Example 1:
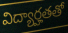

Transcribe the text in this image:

విద్యార్హతతో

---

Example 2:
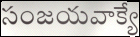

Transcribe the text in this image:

సంజయవాక్యే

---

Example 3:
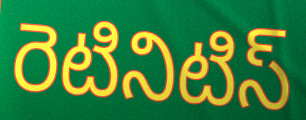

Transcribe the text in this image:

రెటినిటిస్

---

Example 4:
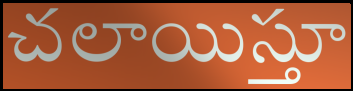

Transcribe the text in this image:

చలాయిస్తూ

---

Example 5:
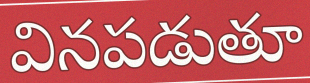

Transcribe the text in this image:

వినపడుతూ